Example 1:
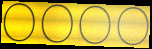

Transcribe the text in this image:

OOOO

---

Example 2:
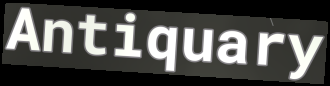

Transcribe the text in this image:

Antiquary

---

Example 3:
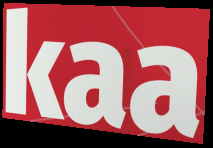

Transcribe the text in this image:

kaa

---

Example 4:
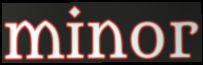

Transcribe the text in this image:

minor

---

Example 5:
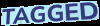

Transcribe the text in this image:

TAGGED